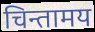
चिन्तामय